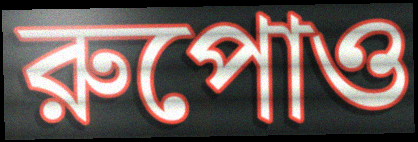
রুপোও